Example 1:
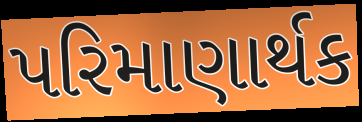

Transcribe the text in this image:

પરિમાણાર્થક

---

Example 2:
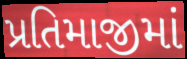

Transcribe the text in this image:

પ્રતિમાજીમાં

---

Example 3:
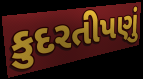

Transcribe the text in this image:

કુદરતીપણું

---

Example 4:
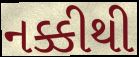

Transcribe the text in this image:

નક્કીથી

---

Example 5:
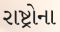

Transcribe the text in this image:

રાષ્ટ્રોના